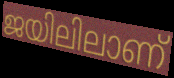
ജയിലിലാണ്